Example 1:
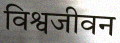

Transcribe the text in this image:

विश्वजीवन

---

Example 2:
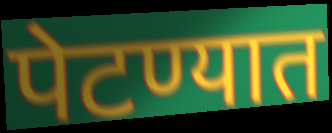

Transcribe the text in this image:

पेटण्यात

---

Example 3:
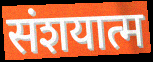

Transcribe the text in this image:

संशयात्म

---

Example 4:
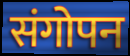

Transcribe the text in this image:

संगोपन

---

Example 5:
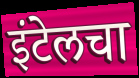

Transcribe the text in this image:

इंटेलचा